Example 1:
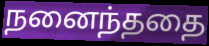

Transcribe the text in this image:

நனைந்ததை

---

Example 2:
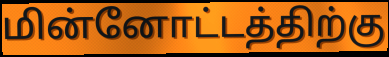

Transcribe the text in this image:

மின்னோட்டத்திற்கு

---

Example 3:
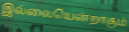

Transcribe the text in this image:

இல்லையென்றாகும்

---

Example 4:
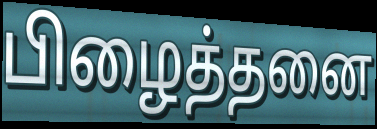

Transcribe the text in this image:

பிழைத்தனை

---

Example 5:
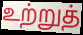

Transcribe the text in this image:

உற்றுத்